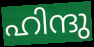
ഹിന്ദു